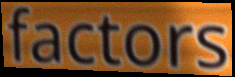
factors